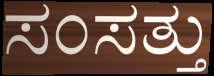
ಸಂಸತ್ತು